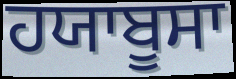
ਹਯਾਬੂਸਾ